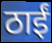
ठाईं